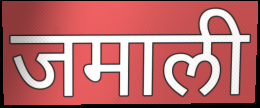
जमाली